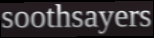
soothsayers